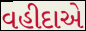
વહીદાએ